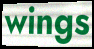
wings